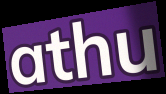
athu